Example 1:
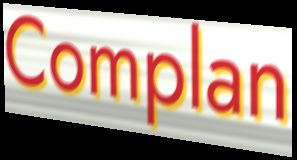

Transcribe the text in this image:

Complan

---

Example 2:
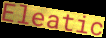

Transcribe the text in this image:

Eleatic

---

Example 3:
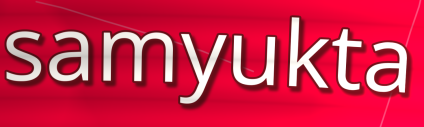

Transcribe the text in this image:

samyukta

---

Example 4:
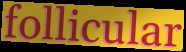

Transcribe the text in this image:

follicular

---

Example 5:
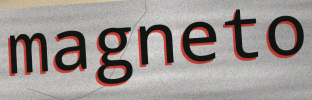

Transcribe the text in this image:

magneto